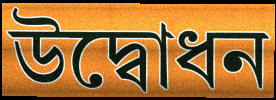
উদ্বোধন